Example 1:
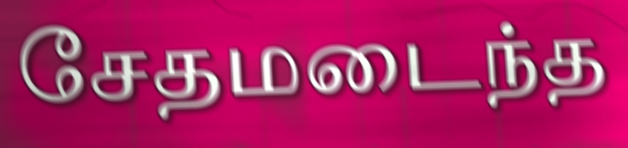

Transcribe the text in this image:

சேதமடைந்த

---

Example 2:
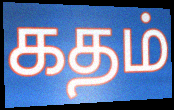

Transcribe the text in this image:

கதம்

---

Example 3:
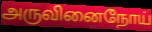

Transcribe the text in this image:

அருவினைநோய்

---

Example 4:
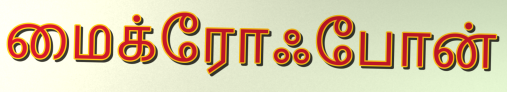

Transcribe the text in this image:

மைக்ரோஃபோன்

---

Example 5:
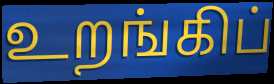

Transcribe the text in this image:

உறங்கிப்